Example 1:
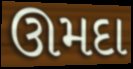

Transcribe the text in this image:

ઊમદા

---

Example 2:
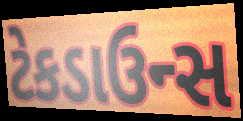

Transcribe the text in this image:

ટેકડાઉન્સ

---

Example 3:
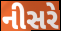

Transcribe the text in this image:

નીસરે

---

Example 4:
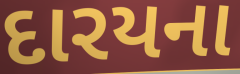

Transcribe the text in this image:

દારયના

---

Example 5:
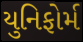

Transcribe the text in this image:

યુનિફોર્મ